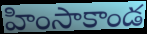
హింసాకాండ